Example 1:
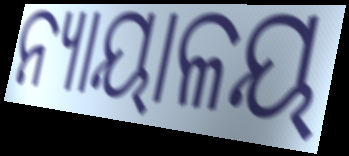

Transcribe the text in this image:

ନ୍ୟାୟାଳୟ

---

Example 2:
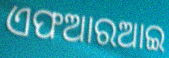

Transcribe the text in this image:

ଏଫଆରଆଇ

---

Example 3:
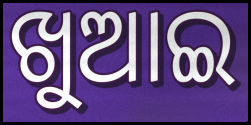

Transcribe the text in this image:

ଖୁଆଇ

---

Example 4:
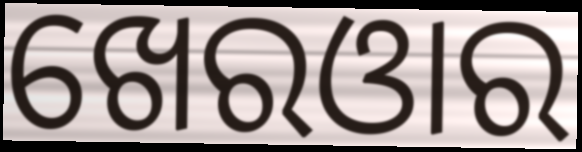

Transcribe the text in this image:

ଖେରଓାର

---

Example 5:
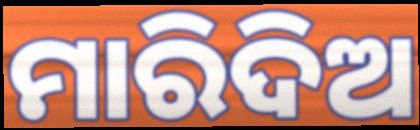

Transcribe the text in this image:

ମାରିଦିଅ